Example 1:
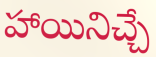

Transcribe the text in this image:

హాయినిచ్చే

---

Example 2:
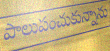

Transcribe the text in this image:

పాలుపంచుకున్నాను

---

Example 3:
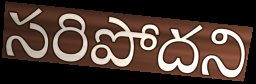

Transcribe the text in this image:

సరిపోదని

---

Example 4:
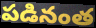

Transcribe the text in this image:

పడినంత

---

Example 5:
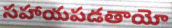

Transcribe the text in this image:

సహాయపడతాయో